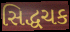
સિદ્ધચક